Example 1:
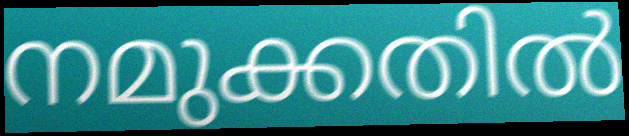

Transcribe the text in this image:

നമുക്കതിൽ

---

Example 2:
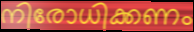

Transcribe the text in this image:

നിരോധിക്കണം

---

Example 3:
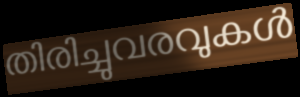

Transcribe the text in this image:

തിരിച്ചുവരവുകൾ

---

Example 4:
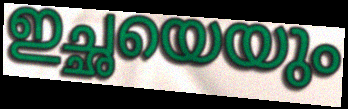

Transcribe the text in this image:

ഇച്ഛയെയും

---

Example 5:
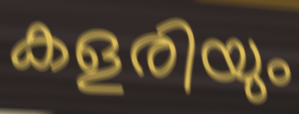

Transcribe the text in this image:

കളരിയും